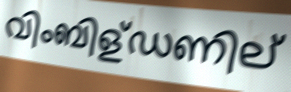
വിംബിള്ഡണില്